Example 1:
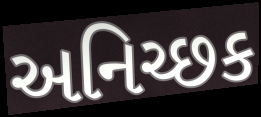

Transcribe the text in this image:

અનિચ્છક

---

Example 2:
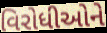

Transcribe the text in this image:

વિરોધીઓને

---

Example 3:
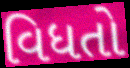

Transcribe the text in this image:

વિધતો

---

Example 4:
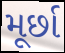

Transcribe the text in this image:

મૂર્છા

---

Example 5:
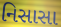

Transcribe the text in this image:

નિસાસા